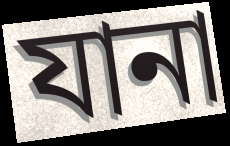
যানা